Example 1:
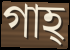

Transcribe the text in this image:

গাহ্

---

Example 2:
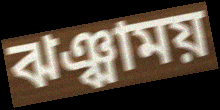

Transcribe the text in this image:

ঝঞ্ঝাময়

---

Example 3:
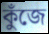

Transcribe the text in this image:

কুঁজে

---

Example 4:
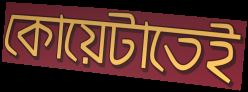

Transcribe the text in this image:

কোয়েটাতেই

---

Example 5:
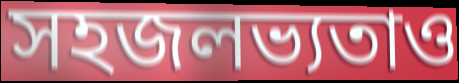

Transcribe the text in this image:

সহজলভ্যতাও